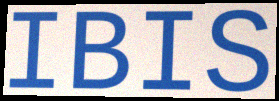
IBIS